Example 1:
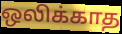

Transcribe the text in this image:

ஒலிக்காத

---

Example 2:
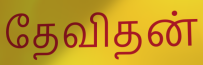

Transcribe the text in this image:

தேவிதன்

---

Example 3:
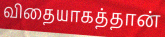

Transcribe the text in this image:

விதையாகத்தான்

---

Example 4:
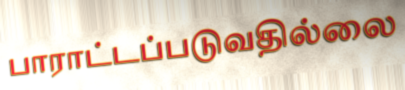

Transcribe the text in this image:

பாராட்டப்படுவதில்லை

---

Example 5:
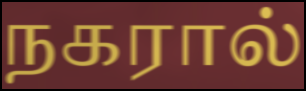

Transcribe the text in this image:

நகரால்